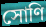
সোণি